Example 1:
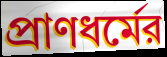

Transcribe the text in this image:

প্রাণধর্মের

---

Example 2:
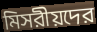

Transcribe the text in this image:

মিসরীয়দের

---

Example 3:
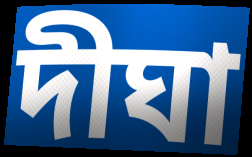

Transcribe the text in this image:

দীঘা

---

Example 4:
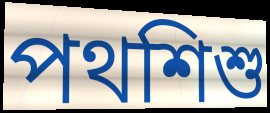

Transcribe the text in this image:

পথশিশু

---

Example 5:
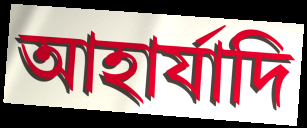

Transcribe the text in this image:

আহার্যাদি